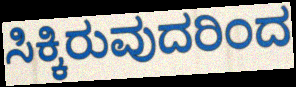
ಸಿಕ್ಕಿರುವುದರಿಂದ